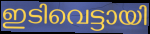
ഇടിവെട്ടായി